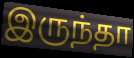
இருந்தா